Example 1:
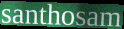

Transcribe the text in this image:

santhosam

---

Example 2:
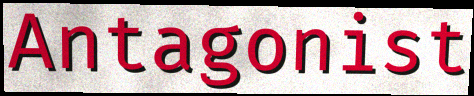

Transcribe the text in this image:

Antagonist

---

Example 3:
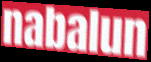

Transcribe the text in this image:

nabalun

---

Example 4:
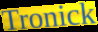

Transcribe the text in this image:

Tronick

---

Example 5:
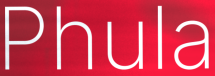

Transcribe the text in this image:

Phula